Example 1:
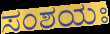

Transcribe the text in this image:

ಸಂಶಯಃ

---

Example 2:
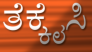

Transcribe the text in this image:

ತೆಕ್ಕೈಸಿ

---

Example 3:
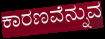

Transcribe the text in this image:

ಕಾರಣವೆನ್ನುವ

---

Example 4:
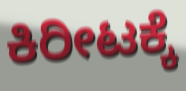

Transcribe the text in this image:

ಕಿರೀಟಕ್ಕೆ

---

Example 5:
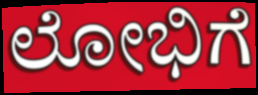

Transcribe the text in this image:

ಲೋಭಿಗೆ